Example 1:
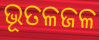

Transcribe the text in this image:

ଭୂତଳଜଳ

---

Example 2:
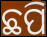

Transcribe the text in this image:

ଛପି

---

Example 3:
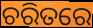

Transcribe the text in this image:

ଚରିତରେ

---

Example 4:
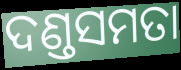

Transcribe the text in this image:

ଦଣ୍ଡସମତା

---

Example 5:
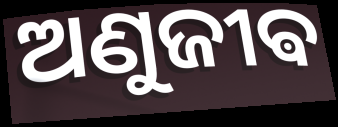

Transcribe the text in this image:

ଅଣୁଜୀଵ